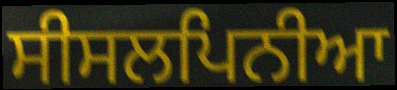
ਸੀਸਲਪਿਨੀਆ